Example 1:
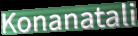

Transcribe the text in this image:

Konanatali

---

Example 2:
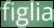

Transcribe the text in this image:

figlia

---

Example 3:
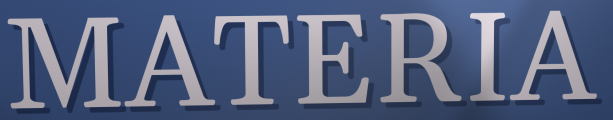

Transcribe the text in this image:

MATERIA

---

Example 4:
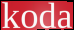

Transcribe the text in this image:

koda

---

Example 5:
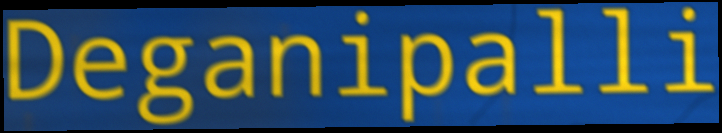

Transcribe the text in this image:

Deganipalli